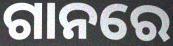
ଗାନରେ